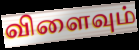
விளைவும்